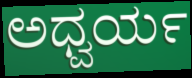
ಅಧ್ವರ್ಯ